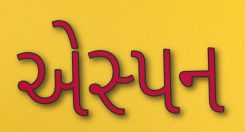
એસ્પન